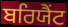
ਬਰਿਯੈਂਟ